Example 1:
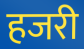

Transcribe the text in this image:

हजरी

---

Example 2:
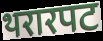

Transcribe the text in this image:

थरारपट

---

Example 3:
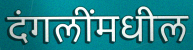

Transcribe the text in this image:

दंगलींमधील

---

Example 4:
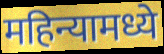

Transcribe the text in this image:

महिन्यामध्ये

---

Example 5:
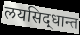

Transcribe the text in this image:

लयसिद्धान्त